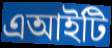
এআইটি